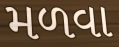
મળવા